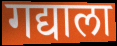
गद्याला